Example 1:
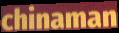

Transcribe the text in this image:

chinaman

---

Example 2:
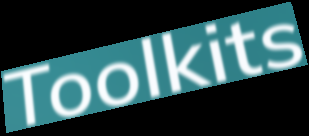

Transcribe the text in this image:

Toolkits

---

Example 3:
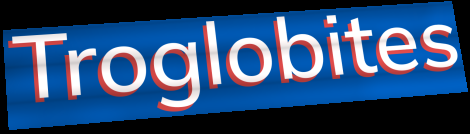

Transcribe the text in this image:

Troglobites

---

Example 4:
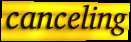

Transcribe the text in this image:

canceling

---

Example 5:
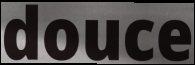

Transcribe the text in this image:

douce